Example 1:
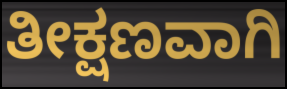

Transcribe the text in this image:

ತೀಕ್ಷಣವಾಗಿ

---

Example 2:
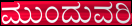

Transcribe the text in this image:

ಮುಂದುವರಿ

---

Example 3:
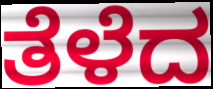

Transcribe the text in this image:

ತೆಳೆದ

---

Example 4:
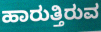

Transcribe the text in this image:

ಹಾರುತ್ತಿರುವ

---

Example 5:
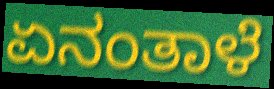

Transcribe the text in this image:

ಏನಂತಾಳೆ